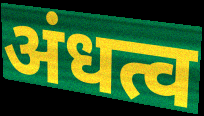
अंधत्व